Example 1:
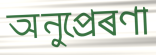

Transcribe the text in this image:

অনুপ্ৰেৰণা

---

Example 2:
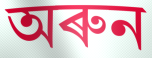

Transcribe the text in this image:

অৰুন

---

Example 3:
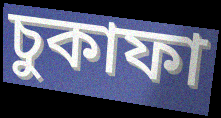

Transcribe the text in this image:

চুকাফা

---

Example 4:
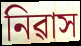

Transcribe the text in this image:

নিৱাস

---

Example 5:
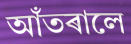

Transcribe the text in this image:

আঁতৰালে